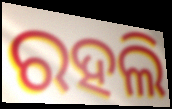
ରହଲି